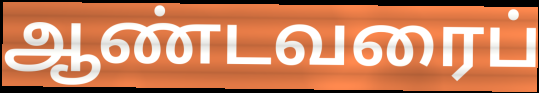
ஆண்டவரைப்